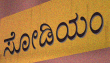
ಸೋಡಿಯಂ